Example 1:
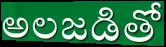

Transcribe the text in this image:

అలజడితో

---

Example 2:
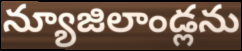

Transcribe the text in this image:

న్యూజిలాండ్లను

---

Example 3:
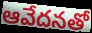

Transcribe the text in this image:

ఆవేదనతో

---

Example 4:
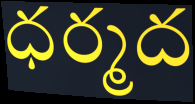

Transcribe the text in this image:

ధర్మద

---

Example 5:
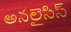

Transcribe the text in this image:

అనలైసిస్